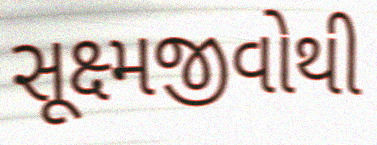
સૂક્ષ્મજીવોથી